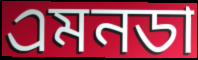
এমনডা